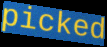
picked